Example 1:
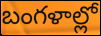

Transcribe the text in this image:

బంగళాల్లో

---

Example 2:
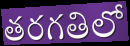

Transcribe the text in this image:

తరగతిలో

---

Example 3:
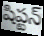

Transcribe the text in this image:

షిప్టన్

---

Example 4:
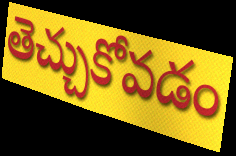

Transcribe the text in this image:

తెచ్చుకోవడం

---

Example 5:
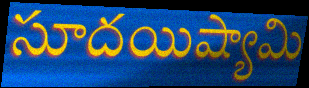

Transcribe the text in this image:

సూదయిష్యామి